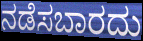
ನಡೆಸಬಾರದು